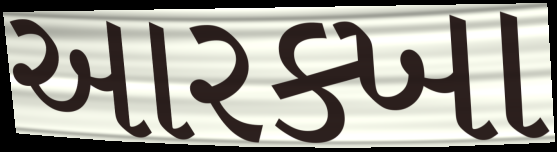
આરક્ખા